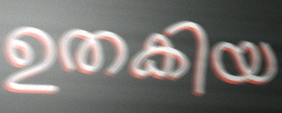
ഉതകിയ